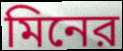
মিনের